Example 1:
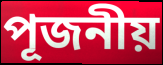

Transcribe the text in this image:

পূজনীয়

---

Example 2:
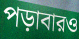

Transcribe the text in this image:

পড়াবারও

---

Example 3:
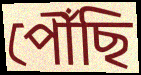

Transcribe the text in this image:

পৌঁছি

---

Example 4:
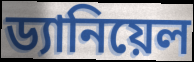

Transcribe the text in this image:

ড্যানিয়েল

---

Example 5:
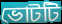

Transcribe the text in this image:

ভোটটি